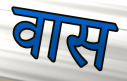
वास